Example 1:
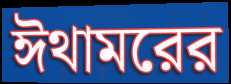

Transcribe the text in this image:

ঈথামরের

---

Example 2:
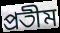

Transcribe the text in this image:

প্রতীম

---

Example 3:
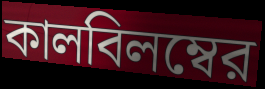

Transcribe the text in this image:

কালবিলম্বের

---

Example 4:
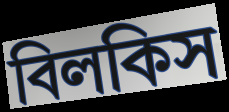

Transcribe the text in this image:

বিলকিস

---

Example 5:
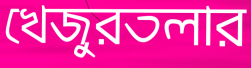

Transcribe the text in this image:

খেজুরতলার